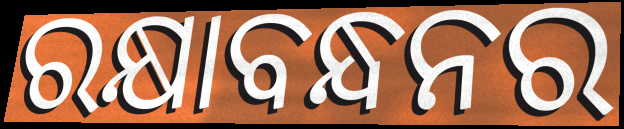
ରକ୍ଷାବନ୍ଧନର